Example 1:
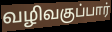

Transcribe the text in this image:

வழிவகுப்பார்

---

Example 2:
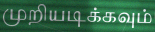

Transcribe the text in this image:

முறியடிக்கவும்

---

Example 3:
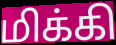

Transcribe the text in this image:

மிக்கி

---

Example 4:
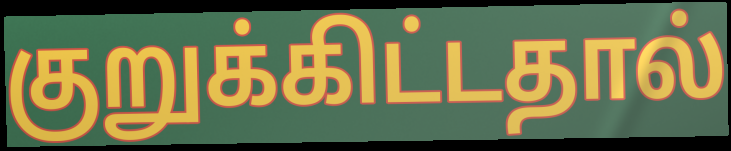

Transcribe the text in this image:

குறுக்கிட்டதால்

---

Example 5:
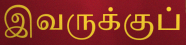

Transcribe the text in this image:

இவருக்குப்